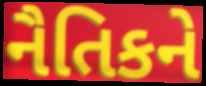
નૈતિકને